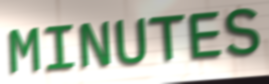
MINUTES